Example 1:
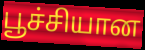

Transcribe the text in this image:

பூச்சியான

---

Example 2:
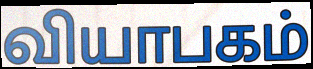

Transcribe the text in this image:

வியாபகம்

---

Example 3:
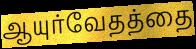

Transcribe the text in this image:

ஆயுர்வேதத்தை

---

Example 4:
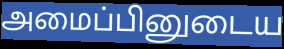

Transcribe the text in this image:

அமைப்பினுடைய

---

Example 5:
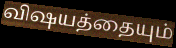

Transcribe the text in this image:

விஷயத்தையும்